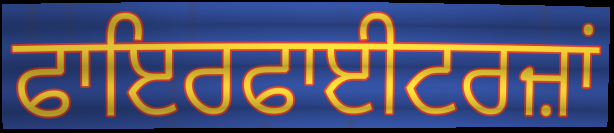
ਫਾਇਰਫਾਈਟਰਜ਼ਾਂ